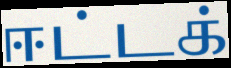
ஈட்டக்